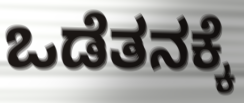
ಒಡೆತನಕ್ಕೆ